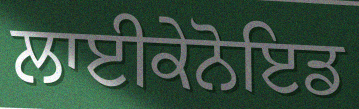
ਲਾਈਕੇਨੋਇਡ